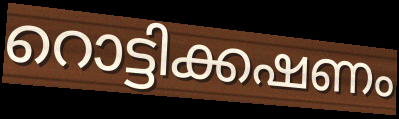
റൊട്ടിക്കഷണം